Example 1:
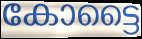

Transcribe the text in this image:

കോട്ടൈ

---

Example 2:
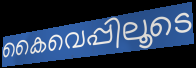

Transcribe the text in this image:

കൈവെപ്പിലൂടെ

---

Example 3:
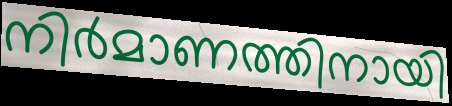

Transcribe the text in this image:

നിർമാണത്തിനായി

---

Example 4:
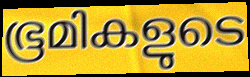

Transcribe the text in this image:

ഭൂമികളുടെ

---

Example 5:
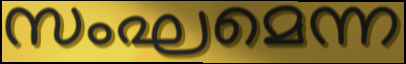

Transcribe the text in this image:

സംഘമെന്ന